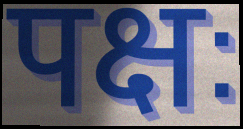
पक्षः